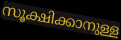
സൂക്ഷിക്കാനുള്ള